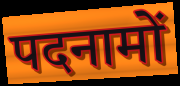
पदनामों